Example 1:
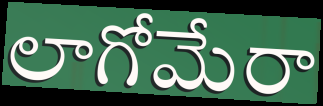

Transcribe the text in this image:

లాగోమేరా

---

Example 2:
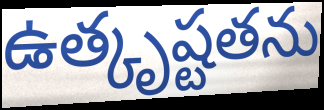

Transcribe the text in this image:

ఉత్కృష్టతను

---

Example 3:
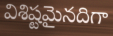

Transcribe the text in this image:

విశిష్టమైనదిగా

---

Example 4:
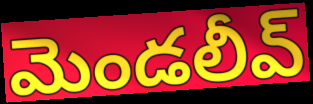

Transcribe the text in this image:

మెండలీవ్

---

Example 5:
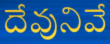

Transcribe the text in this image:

దేవునివే